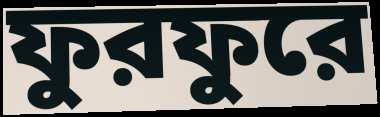
ফুরফুরে